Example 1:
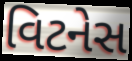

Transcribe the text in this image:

વિટનેસ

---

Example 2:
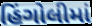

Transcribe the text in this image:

હિંગોલીમાં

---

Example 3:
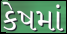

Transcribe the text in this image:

કેષમાં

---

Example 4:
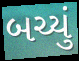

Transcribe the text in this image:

બચ્યું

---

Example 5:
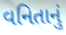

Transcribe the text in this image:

વનિતાનું